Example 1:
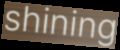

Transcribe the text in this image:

shining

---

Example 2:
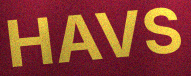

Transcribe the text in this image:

HAVS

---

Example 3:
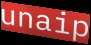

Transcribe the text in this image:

unaip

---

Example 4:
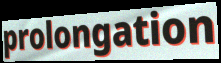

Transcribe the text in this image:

prolongation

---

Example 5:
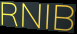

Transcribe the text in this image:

RNIB